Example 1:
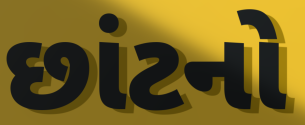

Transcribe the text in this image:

છાંટનો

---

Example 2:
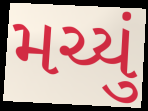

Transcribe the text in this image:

મચ્યું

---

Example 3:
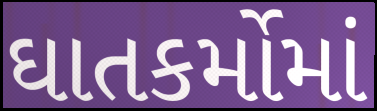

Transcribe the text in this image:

ઘાતકર્મોમાં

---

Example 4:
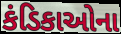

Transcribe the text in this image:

કંડિકાઓના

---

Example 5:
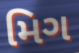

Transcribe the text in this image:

મિગ